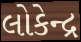
લોકેન્દ્ર